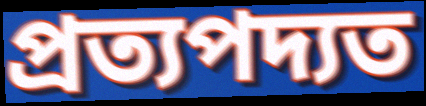
প্রত্যপদ্যত